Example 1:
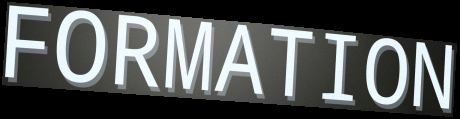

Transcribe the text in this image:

FORMATION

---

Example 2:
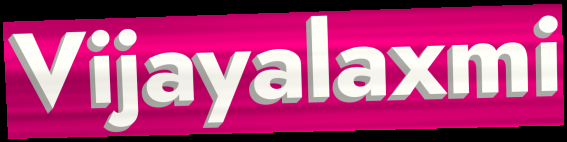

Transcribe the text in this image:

Vijayalaxmi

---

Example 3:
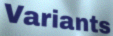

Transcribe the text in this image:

Variants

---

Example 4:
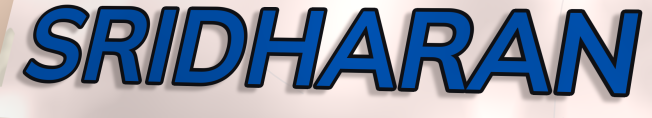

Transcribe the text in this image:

SRIDHARAN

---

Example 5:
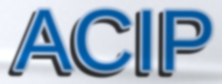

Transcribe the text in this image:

ACIP